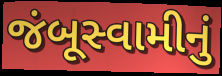
જંબૂસ્વામીનું